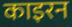
काइरन